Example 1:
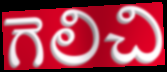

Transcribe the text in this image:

గెలిచి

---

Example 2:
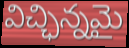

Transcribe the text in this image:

విచ్ఛిన్నమై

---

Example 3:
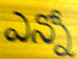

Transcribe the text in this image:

ఎన్నో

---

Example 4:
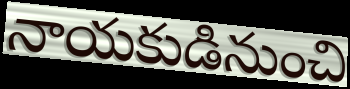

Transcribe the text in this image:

నాయకుడినుంచి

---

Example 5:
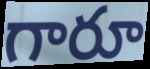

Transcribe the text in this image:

గారూ